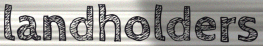
landholders